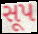
સૂપ